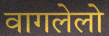
वागलेलो